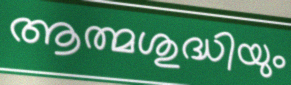
ആത്മശുദ്ധിയും